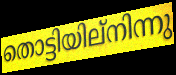
തൊട്ടിയില്നിന്നു